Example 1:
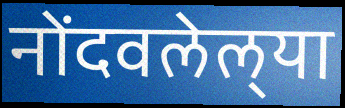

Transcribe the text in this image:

नोंदवलेल्या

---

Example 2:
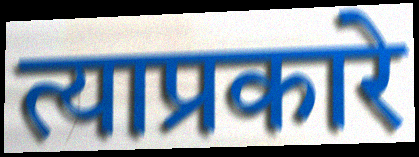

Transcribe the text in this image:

त्याप्रकारे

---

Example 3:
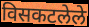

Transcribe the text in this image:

विसकटलेले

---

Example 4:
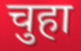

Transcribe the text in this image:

चुहा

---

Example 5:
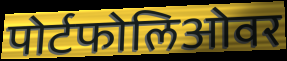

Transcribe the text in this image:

पोर्टफोलिओवर